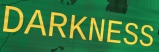
DARKNESS